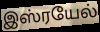
இஸ்ரயேல்